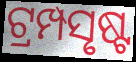
ଟ୍ରମ୍ପସୃଷ୍ଟ